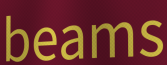
beams